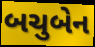
બચુબેન